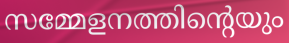
സമ്മേളനത്തിന്റെയും